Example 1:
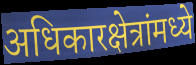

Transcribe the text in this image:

अधिकारक्षेत्रांमध्ये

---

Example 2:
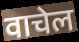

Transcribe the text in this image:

वाचेल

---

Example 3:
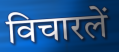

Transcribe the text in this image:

विचारलें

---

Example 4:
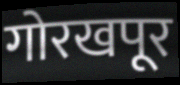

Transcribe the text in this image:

गोरखपूर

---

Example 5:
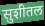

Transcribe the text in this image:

सुशीतल